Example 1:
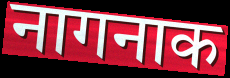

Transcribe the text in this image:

नागनाक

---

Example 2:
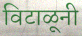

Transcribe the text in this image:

विटाळूनी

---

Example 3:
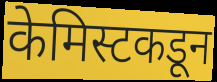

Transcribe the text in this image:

केमिस्टकडून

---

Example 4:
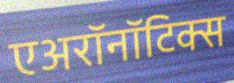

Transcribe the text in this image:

एअरॉनॉटिक्स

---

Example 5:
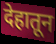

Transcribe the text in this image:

देहातून